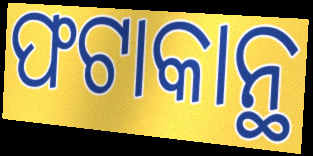
ଫଟାକାନ୍ଥ